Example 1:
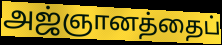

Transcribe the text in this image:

அஜ்ஞானத்தைப்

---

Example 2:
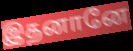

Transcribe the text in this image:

இதனானே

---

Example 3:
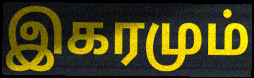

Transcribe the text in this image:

இகரமும்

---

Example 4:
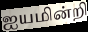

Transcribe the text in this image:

ஐயமின்றி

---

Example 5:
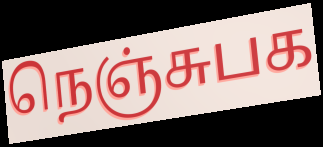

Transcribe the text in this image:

நெஞ்சுபக